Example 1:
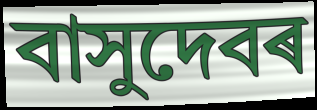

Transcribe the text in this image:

বাসুদেবৰ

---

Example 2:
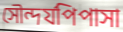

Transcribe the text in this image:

সৌন্দৰ্যপিপাসা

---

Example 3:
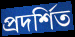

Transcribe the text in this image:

প্ৰদৰ্শিত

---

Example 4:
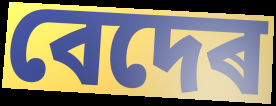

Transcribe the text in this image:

বেদেৰ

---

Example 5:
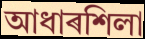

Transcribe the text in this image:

আধাৰশিলা